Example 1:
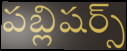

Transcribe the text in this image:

పబ్లిషర్స్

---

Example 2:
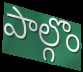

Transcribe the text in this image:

పాల్గొం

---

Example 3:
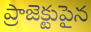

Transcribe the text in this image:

ప్రాజెక్టుపైన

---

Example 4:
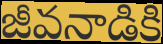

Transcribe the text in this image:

జీవనాడికి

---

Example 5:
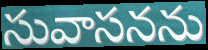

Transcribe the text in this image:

సువాసనను